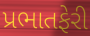
પ્રભાતફેરી